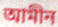
আমীন